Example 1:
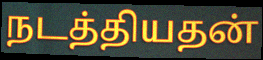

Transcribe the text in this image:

நடத்தியதன்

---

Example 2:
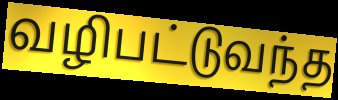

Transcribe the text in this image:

வழிபட்டுவந்த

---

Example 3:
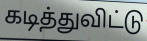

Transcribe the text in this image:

கடித்துவிட்டு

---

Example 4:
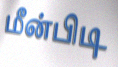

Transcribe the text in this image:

மீன்பிடி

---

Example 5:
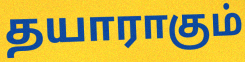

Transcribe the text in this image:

தயாராகும்